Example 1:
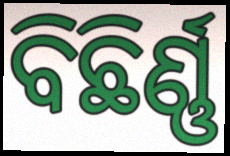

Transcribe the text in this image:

ବିଛିର୍ଣ୍ଣ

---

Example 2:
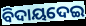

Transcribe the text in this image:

ବିଦାୟଦେଇ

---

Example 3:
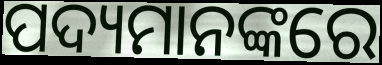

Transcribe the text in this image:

ପଦ୍ୟମାନଙ୍କରେ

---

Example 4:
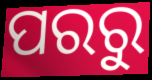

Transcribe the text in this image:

ପରରୁ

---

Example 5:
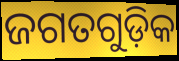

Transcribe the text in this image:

ଜଗତଗୁଡ଼ିକ